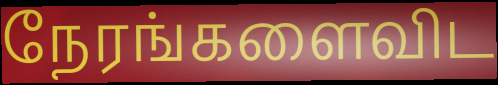
நேரங்களைவிட